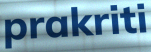
prakriti